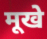
मूखे